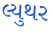
લ્યુથર